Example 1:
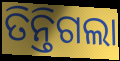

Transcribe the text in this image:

ତିନ୍ତିଗଲା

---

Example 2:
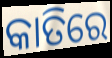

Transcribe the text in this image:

କାତିରେ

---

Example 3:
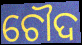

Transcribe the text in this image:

ଚୌଦ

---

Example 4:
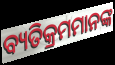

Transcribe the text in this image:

ବ୍ୟତିକ୍ରମମାନଙ୍କ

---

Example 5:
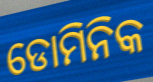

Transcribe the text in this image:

ଡୋମିନିକ